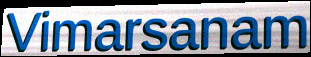
Vimarsanam